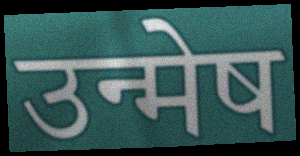
उन्मेष